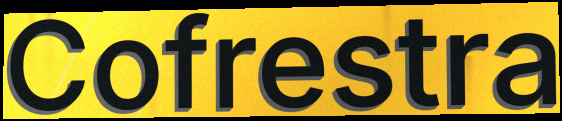
Cofrestra